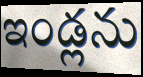
ఇండ్లను